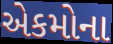
એકમોના